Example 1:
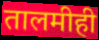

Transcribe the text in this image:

तालमीही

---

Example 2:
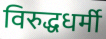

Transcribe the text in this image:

विरुद्धधर्मी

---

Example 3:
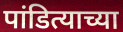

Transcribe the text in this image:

पांडित्याच्या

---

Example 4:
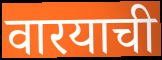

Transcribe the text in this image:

वारयाची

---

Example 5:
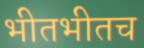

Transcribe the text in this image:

भीतभीतच